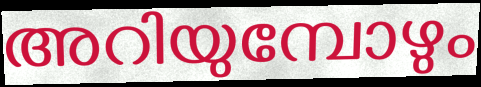
അറിയുമ്പോഴും